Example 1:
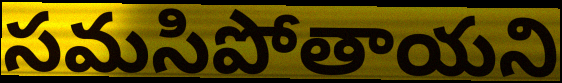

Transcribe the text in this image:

సమసిపోతాయని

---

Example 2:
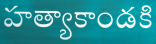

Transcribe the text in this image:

హత్యాకాండకి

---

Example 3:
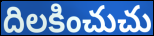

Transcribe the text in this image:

దిలకించుచు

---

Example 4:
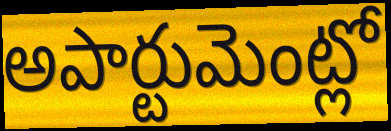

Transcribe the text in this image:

అపార్టుమెంట్లో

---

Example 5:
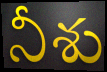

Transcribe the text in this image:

నీశు